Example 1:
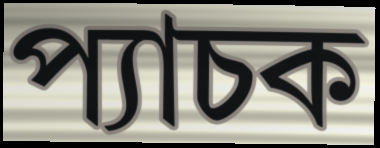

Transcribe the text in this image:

প্যাচক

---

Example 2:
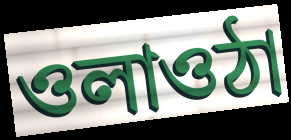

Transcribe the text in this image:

ওলাওঠা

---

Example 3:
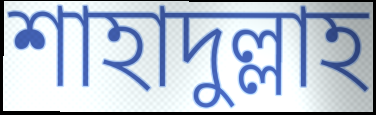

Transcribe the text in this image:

শাহাদুল্লাহ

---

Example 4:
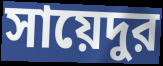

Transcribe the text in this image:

সায়েদুর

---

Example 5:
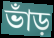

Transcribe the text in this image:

ভাঁড়